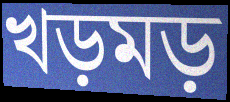
খড়মড়